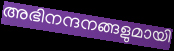
അഭിനന്ദനങ്ങളുമായി